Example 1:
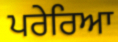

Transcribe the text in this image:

ਪਰੇਰਿਆ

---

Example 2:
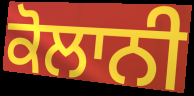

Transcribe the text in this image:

ਕੋਲਾਨੀ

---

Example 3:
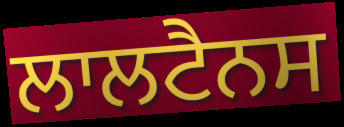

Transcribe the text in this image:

ਲਾਲਟੈਨਸ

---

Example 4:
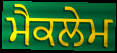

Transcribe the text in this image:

ਮੈਕਲੇਮ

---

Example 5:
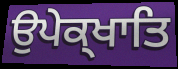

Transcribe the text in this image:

ਉਪੇਕ੍ਖਾਤਿ